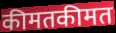
कीमतकीमत